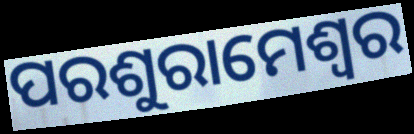
ପରଶୁରାମେଶ୍ୱର